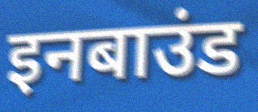
इनबाउंड